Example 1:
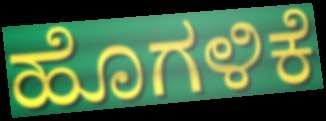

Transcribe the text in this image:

ಹೊಗಳಿಕೆ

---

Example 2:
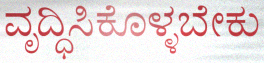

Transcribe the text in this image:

ವೃದ್ಧಿಸಿಕೊಳ್ಳಬೇಕು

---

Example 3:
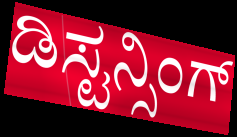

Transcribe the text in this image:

ಡಿಸ್ಟನ್ಸಿಂಗ್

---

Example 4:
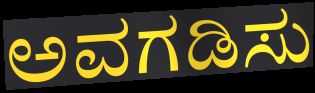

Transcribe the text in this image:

ಅವಗಡಿಸು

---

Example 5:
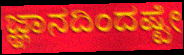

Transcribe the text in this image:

ಜ್ಞಾನದಿಂದಷ್ಟೇ